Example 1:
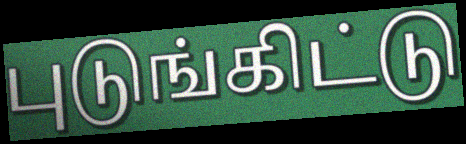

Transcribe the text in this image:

புடுங்கிட்டு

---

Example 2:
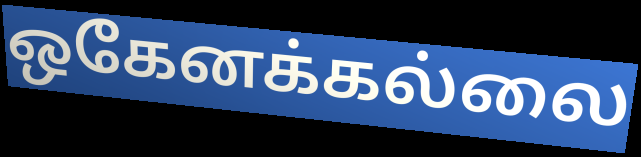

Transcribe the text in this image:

ஒகேனக்கல்லை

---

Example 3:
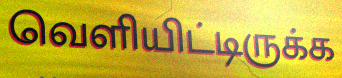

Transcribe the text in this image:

வெளியிட்டிருக்க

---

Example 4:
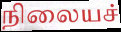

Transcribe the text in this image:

நிலையச்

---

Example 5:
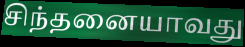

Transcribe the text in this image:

சிந்தனையாவது